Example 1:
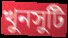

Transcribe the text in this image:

খুনসুটি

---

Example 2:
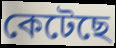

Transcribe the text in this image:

কেটেছে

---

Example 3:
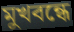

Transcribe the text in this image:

মুখবন্ধে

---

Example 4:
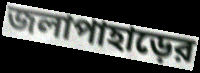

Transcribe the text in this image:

জলাপাহাড়ের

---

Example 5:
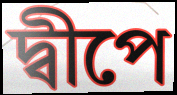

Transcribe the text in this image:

দ্বীপে